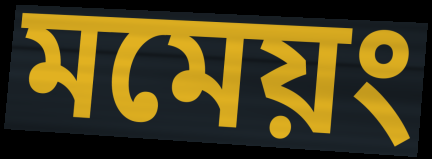
মমেয়ং